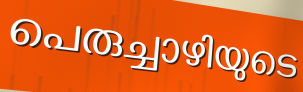
പെരുച്ചാഴിയുടെ